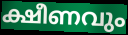
ക്ഷീണവും